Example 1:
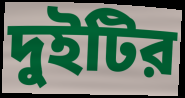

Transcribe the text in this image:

দুইটির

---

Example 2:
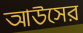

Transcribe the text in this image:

আউসের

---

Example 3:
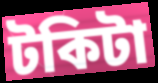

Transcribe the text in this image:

টকিটা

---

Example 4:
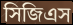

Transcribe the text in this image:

সিজিএস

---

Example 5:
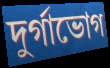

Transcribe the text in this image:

দুর্গাভোগ